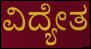
ವಿದ್ಯೇತ